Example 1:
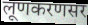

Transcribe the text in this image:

लूणकरणसर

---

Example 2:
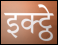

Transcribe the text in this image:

इक्ट्ठे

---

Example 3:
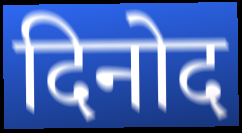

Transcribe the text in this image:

दिनोद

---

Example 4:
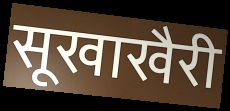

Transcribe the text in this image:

सूखाखैरी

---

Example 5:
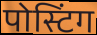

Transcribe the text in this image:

पोस्टिंग